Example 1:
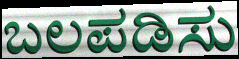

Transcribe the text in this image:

ಬಲಪಡಿಸು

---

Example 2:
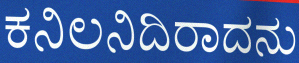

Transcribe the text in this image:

ಕನಿಲನಿದಿರಾದನು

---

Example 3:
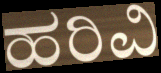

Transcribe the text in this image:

ಹರಿವಿ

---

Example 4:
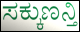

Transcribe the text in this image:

ಸಕ್ಕುಣನ್ತಿ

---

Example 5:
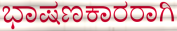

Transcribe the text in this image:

ಭಾಷಣಕಾರರಾಗಿ